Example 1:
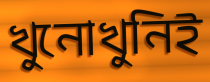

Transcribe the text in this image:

খুনোখুনিই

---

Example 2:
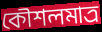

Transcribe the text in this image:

কৌশলমাত্র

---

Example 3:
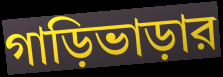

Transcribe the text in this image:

গাড়িভাড়ার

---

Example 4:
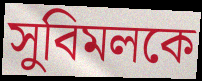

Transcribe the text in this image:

সুবিমলকে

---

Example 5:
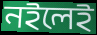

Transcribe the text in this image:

নইলেই